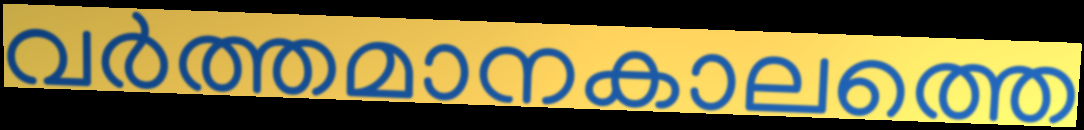
വർത്തമാനകാലത്തെ